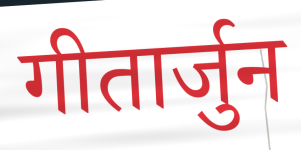
गीतार्जुन